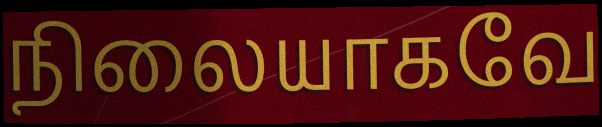
நிலையாகவே